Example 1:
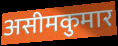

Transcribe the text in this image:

असीमकुमार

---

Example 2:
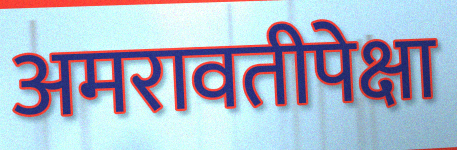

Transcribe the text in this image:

अमरावतीपेक्षा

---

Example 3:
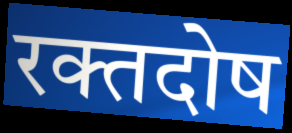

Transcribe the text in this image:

रक्‍तदोष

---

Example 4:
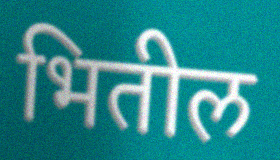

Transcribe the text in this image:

भितील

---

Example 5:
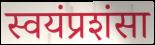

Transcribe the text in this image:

स्वयंप्रशंसा